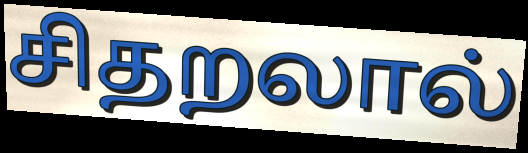
சிதறலால்